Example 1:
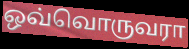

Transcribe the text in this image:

ஒவ்வொருவரா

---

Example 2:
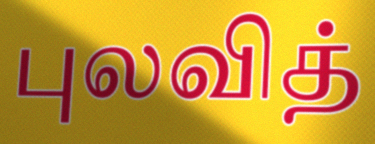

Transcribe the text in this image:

புலவித்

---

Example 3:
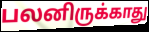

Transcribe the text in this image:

பலனிருக்காது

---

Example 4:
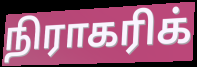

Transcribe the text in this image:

நிராகரிக்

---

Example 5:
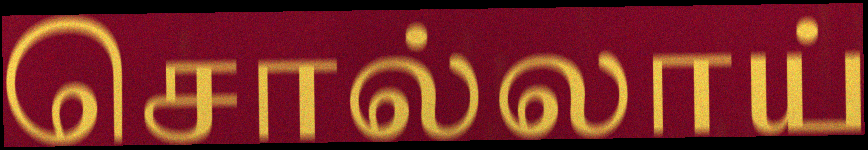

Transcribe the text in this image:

சொல்லாய்